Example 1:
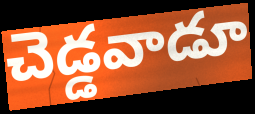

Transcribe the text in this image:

చెడ్డవాడూ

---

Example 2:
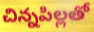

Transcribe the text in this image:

చిన్నపిల్లతో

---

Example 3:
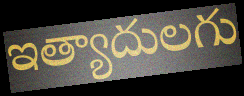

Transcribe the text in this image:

ఇత్యాదులగు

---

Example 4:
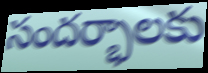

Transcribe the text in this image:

సందర్భాలకు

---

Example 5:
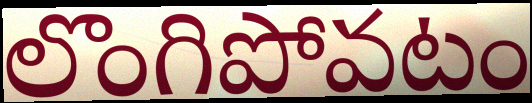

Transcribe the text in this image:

లొంగిపోవటం